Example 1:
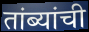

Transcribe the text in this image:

तांब्यांची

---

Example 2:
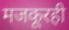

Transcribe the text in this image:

मजकूरही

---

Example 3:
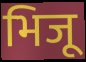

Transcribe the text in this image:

भिजू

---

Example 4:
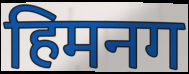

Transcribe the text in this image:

हिमनग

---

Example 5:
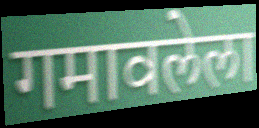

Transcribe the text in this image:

गमावलेला